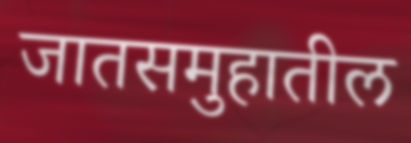
जातसमुहातील